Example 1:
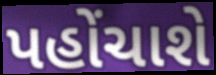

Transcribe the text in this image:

પહોંચાશે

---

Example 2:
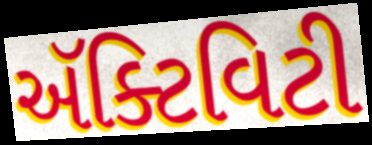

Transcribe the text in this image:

ઍક્ટિવિટી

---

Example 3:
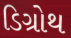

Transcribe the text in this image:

ડિગ્રોથ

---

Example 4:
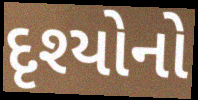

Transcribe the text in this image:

દૃશ્યોનો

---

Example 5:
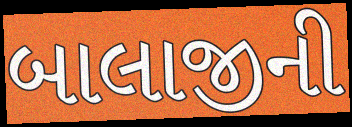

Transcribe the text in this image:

બાલાજીની